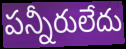
పన్నీరులేదు